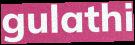
gulathi